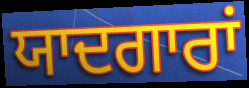
ਯਾਦਗਾਰਾਂ